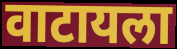
वाटायला